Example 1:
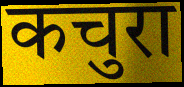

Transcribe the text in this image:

कचुरा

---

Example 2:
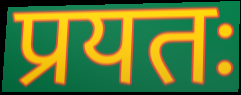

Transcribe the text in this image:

प्रयतः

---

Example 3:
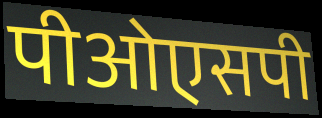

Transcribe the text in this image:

पीओएसपी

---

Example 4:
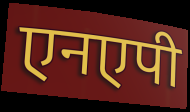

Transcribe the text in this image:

एनएपी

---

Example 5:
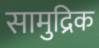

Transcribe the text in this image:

सामुद्रिक